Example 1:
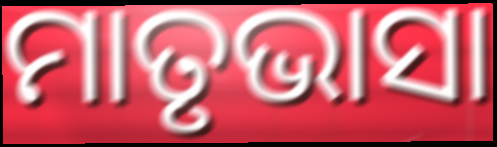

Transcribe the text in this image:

ମାତୃଭାସା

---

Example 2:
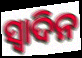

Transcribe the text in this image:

ସ୍ବାଦିନ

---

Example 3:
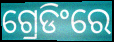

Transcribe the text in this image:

ଗ୍ରେଡିଂରେ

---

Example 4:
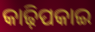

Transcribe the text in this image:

କାଢ଼ିପକାଇ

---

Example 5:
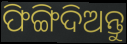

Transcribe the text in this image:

ଫିଙ୍ଗିଦିଅନ୍ତୁ